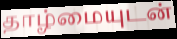
தாழ்மையுடன்